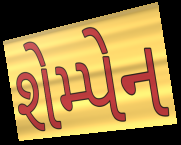
શેમ્પેન